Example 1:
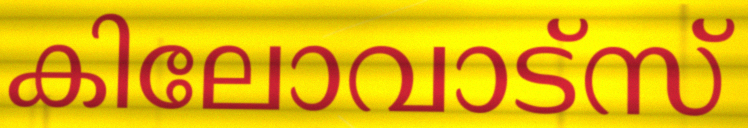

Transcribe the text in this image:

കിലോവാട്സ്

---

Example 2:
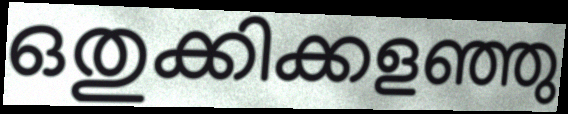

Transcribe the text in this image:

ഒതുക്കിക്കളഞ്ഞു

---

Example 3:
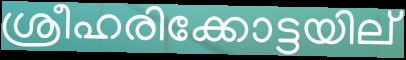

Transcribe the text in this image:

ശ്രീഹരിക്കോട്ടയില്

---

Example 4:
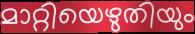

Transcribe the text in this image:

മാറ്റിയെഴുതിയും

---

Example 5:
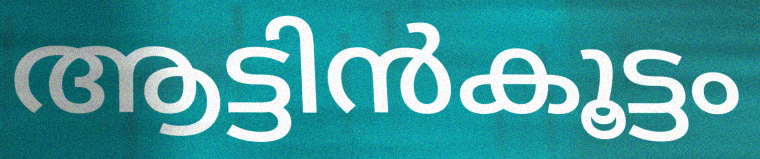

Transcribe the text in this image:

ആട്ടിൻകൂട്ടം